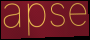
apse